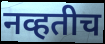
नव्हतीच